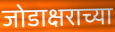
जोडाक्षराच्या